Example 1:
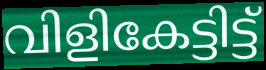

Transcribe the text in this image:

വിളികേട്ടിട്ട്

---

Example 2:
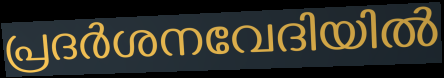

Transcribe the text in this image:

പ്രദർശനവേദിയിൽ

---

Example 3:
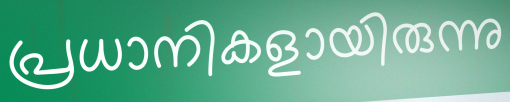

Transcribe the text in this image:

പ്രധാനികളായിരുന്നു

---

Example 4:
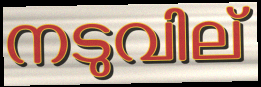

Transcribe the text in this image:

നടുവില്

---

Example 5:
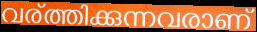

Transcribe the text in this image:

വര്ത്തിക്കുന്നവരാണ്